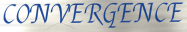
CONVERGENCE